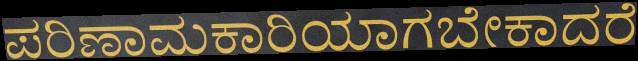
ಪರಿಣಾಮಕಾರಿಯಾಗಬೇಕಾದರೆ